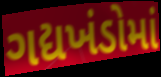
ગદ્યખંડોમાં